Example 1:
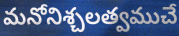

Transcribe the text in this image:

మనోనిశ్చలత్వముచే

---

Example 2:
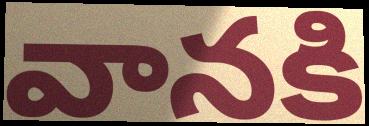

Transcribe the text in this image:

వానకి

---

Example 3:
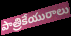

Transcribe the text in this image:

పాత్రికేయురాలు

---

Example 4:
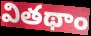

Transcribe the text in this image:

వితథాం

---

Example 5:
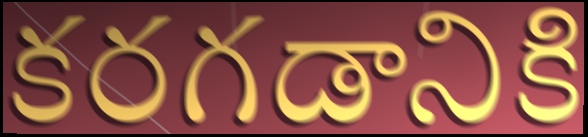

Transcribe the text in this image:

కరగడానికి